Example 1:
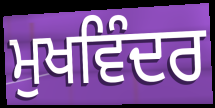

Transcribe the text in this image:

ਮੁਖਵਿੰਦਰ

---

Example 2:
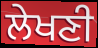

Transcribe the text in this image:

ਲੇਖਣੀ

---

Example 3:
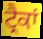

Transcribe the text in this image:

ਟ੍ਰੈਕਾਂ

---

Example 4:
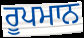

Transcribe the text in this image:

ਰੂਪਮਾਨ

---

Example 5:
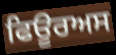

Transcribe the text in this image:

ਫਿਊਰਅਸ